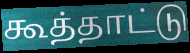
கூத்தாட்டு